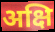
अक्षि